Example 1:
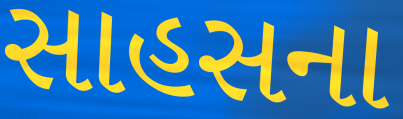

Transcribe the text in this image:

સાહસના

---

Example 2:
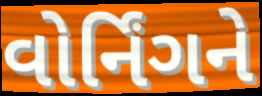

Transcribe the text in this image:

વોર્નિંગને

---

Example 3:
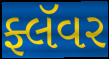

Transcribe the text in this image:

ફ્લૅવર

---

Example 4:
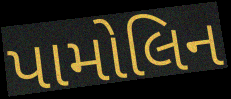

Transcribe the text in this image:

પામોલિન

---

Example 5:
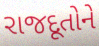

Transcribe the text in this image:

રાજદૂતોને